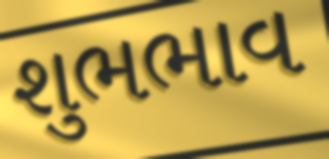
શુભભાવ